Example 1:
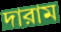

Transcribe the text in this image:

দারাম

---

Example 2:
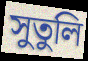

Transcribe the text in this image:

সুতুলি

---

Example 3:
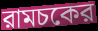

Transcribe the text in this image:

রামচকের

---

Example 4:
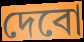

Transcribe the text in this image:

দেবো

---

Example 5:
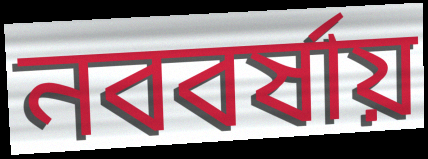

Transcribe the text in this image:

নববর্ষায়